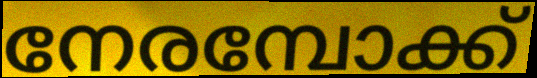
നേരമ്പോക്ക്